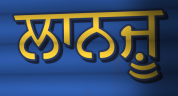
ਲਾਨਜ਼ੂ